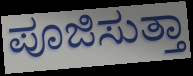
ಪೂಜಿಸುತ್ತಾ